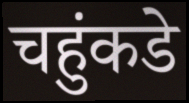
चहुंकडे